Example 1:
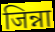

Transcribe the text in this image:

जिन्ना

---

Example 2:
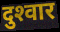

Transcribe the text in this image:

दुश्‍वार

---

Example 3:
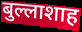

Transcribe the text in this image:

बुल्लाशाह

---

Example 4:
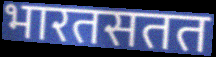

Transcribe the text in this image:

भारतसतत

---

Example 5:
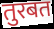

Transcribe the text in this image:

तुरबत